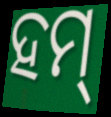
ହମ୍